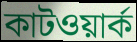
কাটওয়ার্ক